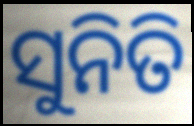
ସୁନିତି